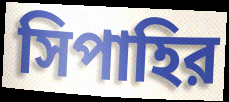
সিপাহির